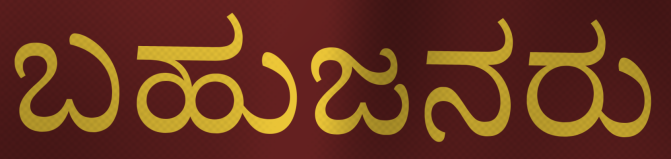
ಬಹುಜನರು